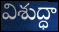
విశుద్ధా